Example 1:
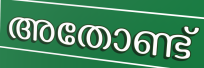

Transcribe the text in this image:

അതോണ്ട്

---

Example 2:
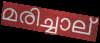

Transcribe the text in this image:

മരിച്ചാല്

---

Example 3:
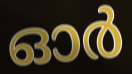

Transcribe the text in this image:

ഓർ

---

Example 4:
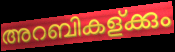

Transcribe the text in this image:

അറബികള്ക്കും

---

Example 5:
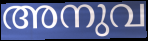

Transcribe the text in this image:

അനുവ